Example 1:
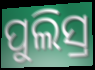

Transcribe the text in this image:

ପୁଲିସ୍ର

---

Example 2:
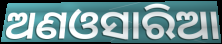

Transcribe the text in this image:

ଅଣଓସାରିଆ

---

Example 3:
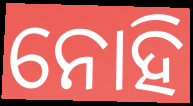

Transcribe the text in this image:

ନୋହି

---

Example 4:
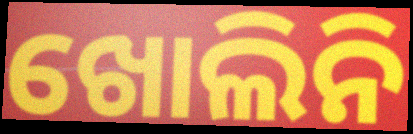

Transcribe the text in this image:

ଖୋଲିନି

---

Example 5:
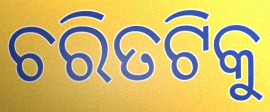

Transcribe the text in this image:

ଚରିତଟିକୁ